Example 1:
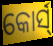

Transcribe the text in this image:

କୋର୍ସ୍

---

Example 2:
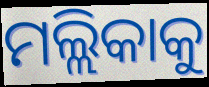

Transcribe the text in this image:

ମଲ୍ଲିକାକୁ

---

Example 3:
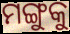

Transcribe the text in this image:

ମଙ୍ଗୁକୁ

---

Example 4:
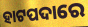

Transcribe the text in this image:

ହାଟପଦାରେ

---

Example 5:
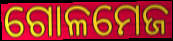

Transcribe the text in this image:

ଗୋଳମେଜ